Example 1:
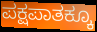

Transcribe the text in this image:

ಪಕ್ಷಪಾತಕ್ಕೂ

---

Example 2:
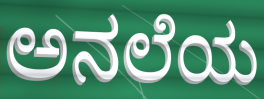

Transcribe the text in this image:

ಅನಲೆಯ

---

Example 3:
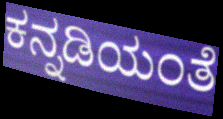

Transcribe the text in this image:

ಕನ್ನಡಿಯಂತೆ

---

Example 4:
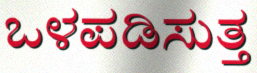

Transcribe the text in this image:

ಒಳಪಡಿಸುತ್ತ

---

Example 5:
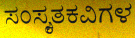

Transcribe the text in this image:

ಸಂಸ್ಕೃತಕವಿಗಳ